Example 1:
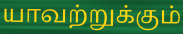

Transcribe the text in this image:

யாவற்றுக்கும்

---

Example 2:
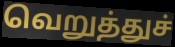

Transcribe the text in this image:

வெறுத்துச்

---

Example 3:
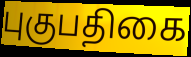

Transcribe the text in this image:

புகுபதிகை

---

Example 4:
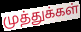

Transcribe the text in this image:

முத்துக்கள்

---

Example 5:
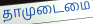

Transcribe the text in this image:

தாமுடைமை